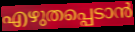
എഴുതപ്പെടാൻ